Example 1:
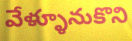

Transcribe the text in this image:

వేళ్ళూనుకొని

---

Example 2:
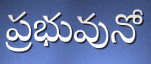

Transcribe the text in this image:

ప్రభువునో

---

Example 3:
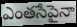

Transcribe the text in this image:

ఎంతసేపైనా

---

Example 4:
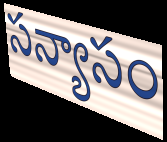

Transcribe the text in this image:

సన్యాసం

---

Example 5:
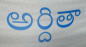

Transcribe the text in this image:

అర్దితా